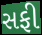
સફી